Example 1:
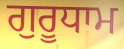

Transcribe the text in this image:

ਗੁਰੂਧਾਮ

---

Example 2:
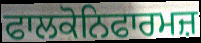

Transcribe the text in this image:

ਫਾਲਕੋਨਿਫਾਰਮਜ਼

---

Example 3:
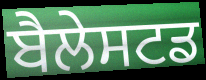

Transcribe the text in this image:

ਬੈਲੇਸਟਡ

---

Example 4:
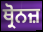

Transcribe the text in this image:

ਥ੍ਰੋਨਜ਼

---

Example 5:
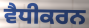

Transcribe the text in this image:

ਵੈਧੀਕਰਨ